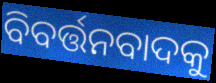
ବିବର୍ତ୍ତନବାଦକୁ